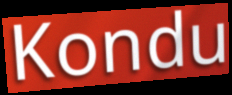
Kondu